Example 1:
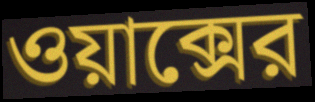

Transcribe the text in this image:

ওয়াক্সের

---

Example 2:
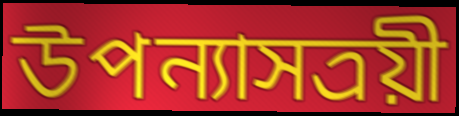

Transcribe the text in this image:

উপন্যাসত্রয়ী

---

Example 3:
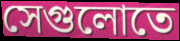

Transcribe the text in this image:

সেগুলোতে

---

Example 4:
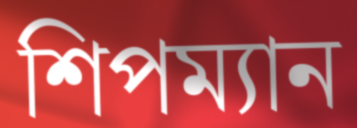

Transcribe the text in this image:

শিপম্যান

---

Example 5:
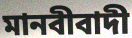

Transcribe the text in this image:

মানবীবাদী